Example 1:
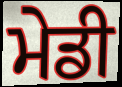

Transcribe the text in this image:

ਮੇਡੀ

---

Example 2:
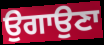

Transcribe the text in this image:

ਉਗਾਉਣਾ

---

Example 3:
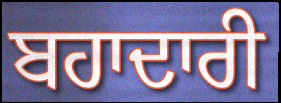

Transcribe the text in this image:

ਬਹਾਦਾਰੀ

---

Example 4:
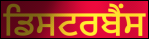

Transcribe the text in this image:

ਡਿਸਟਰਬੈਂਸ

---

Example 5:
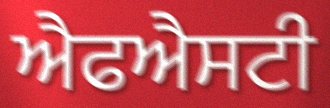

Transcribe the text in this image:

ਐਫਐਸਟੀ